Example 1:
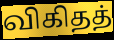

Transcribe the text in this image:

விகிதத்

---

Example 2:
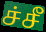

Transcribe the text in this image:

ச்சீ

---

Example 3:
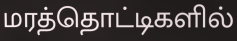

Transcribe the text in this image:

மரத்தொட்டிகளில்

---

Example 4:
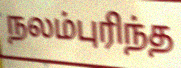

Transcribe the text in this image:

நலம்புரிந்த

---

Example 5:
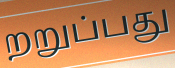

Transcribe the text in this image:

றறுப்பது